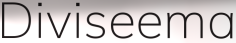
Diviseema